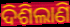
ଦିଶିଲାଣି